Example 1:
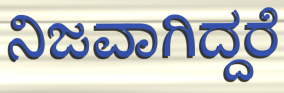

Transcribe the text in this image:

ನಿಜವಾಗಿದ್ದರೆ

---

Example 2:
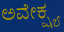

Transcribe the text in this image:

ಅವೇಕ್ಷ್ಯ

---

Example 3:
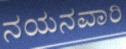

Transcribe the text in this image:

ನಯನವಾರಿ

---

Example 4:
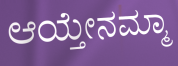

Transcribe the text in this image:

ಆಯ್ತೇನಮ್ಮಾ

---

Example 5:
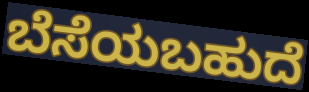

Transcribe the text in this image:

ಬೆಸೆಯಬಹುದೆ